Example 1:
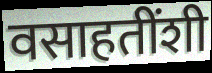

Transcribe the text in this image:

वसाहतींशी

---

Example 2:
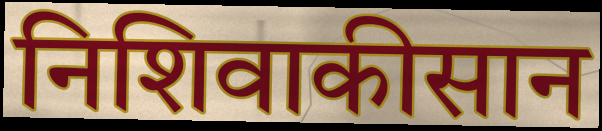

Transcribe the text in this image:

निशिवाकीसान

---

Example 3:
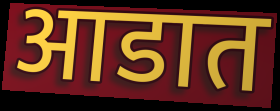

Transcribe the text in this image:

आडात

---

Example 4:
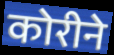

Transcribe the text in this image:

कोरीने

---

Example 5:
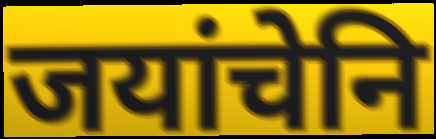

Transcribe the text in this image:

जयांचेनि